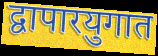
द्वापारयुगात